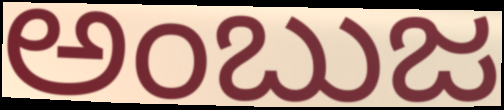
ಅಂಬುಜ